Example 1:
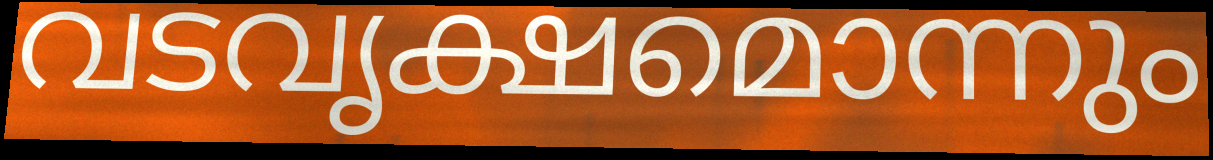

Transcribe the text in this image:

വടവൃക്ഷമൊന്നും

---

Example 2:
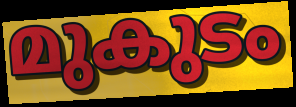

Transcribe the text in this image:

മുകുടം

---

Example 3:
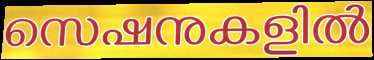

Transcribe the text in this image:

സെഷനുകളിൽ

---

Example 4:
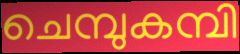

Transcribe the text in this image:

ചെമ്പുകമ്പി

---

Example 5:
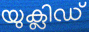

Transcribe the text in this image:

യുക്ലിഡ്